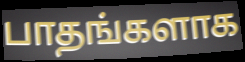
பாதங்களாக